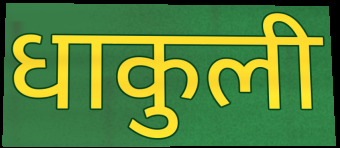
धाकुली